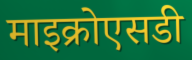
माइक्रोएसडी